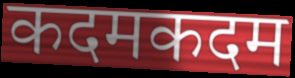
कदमकदम